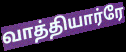
வாத்தியார்ரே